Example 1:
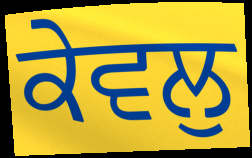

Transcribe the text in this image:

ਕੇਵਲੁ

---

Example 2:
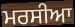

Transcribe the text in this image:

ਮਰਸੀਆ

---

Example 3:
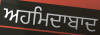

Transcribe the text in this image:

ਅਹਮਿਦਾਬਾਦ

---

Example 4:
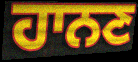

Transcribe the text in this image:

ਹਾਨਣ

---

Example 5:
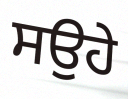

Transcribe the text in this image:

ਸਉਹੇ